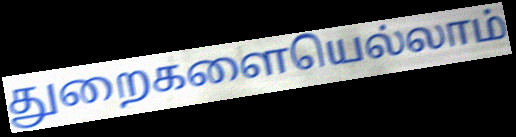
துறைகளையெல்லாம்